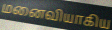
மனைவியாகிய